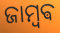
ଜାମ୍ବଵ